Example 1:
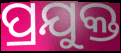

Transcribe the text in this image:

ପ୍ରଯୁକ୍ତ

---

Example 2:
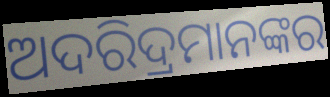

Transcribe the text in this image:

ଅଦରିଦ୍ରମାନଙ୍କର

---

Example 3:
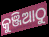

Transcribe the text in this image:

କୁଞ୍ଜିଆଠୁ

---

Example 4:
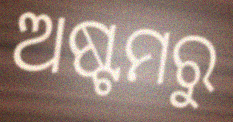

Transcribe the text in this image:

ଅଷ୍ଟମରୁ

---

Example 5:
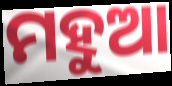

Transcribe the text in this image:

ମହୁଆ